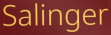
Salinger